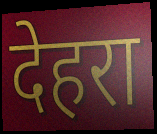
देहरा